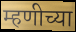
म्हणीच्या